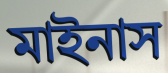
মাইনাস